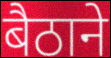
बैठाने